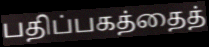
பதிப்பகத்தைத்